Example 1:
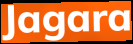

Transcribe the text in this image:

Jagara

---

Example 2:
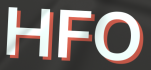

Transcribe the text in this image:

HFO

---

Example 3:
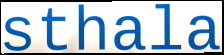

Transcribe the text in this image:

sthala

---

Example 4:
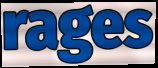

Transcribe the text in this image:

rages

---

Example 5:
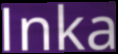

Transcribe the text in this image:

Inka